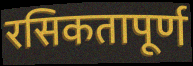
रसिकतापूर्ण